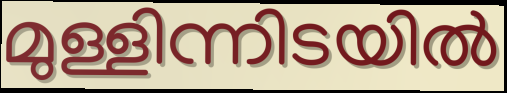
മുള്ളിന്നിടയിൽ